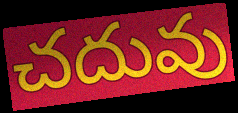
చదువు